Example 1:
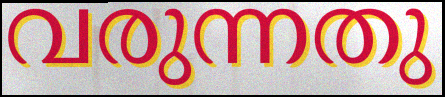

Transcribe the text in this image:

വരുന്നതു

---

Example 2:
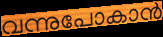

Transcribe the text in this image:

വന്നുപോകാൻ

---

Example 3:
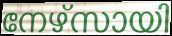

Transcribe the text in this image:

നേഴ്സായി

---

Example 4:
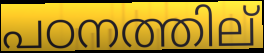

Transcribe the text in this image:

പഠനത്തില്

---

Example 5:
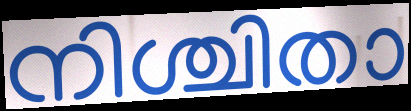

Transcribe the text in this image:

നിശ്ചിതാ